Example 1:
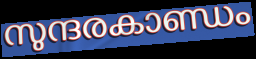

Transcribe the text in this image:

സുന്ദരകാണ്ഡം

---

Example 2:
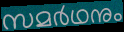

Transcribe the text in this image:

സമർഥനും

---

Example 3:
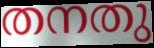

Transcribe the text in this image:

തനതു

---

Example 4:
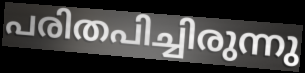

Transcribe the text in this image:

പരിതപിച്ചിരുന്നു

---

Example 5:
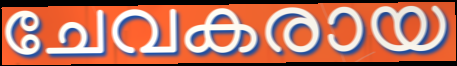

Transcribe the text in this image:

ചേവകരായ